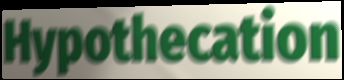
Hypothecation